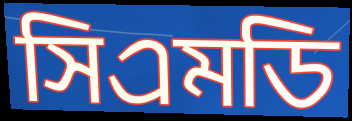
সিএমডি